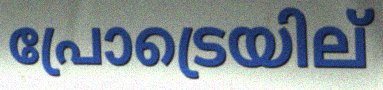
പ്രോട്രെയില്